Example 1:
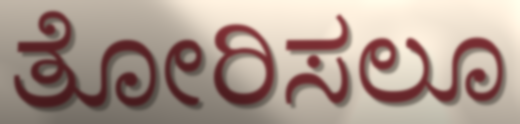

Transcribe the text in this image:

ತೋರಿಸಲೂ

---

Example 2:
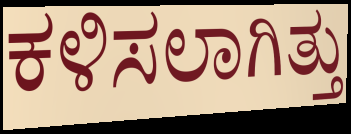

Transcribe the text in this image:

ಕಳಿಸಲಾಗಿತ್ತು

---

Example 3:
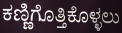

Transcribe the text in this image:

ಕಣ್ಣಿಗೊತ್ತಿಕೊಳ್ಳಲು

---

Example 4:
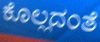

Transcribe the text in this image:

ಕೊಲ್ಲದಂತೆ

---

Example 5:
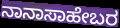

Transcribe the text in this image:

ನಾನಾಸಾಹೇಬರ